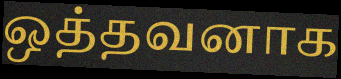
ஒத்தவனாக